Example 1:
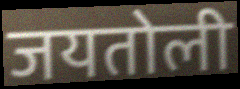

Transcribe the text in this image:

जयतोली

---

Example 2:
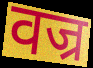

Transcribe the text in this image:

वज्र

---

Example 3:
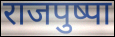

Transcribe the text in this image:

राजपुष्पा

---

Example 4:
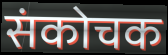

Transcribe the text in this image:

संकोचक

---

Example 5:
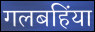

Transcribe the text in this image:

गलबहिंया